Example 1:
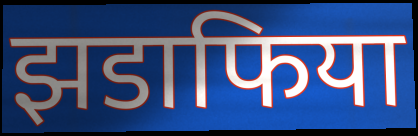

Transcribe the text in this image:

झडाफिया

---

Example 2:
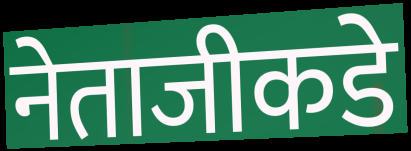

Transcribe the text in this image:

नेताजीकडे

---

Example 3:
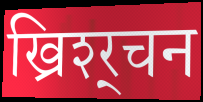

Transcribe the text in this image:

ख्रिश्र्चन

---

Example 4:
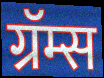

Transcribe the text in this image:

ग्रॅम्स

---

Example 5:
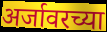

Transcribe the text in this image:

अर्जावरच्या